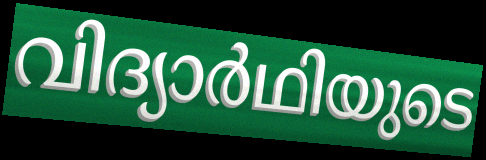
വിദ്യാർഥിയുടെ